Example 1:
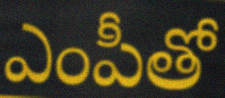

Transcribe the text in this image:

ఎంపీతో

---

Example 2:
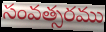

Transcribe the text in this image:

సంవత్సరము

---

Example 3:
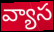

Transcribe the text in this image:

వ్యాస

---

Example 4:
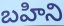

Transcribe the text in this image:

బహిని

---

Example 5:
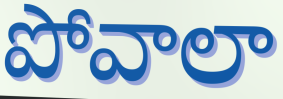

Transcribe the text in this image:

పోవాలా